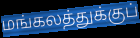
மங்கலத்துக்குப்